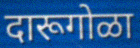
दारूगोळा